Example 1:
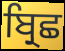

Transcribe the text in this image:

ਬ੍ਰਿਛ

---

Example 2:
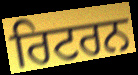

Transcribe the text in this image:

ਰਿਟਰਨ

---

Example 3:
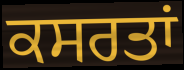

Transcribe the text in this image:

ਕਸਰਤਾਂ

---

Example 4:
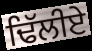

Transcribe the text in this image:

ਢਿੱਲੀਏ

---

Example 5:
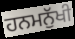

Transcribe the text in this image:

ਹਨਮਨੁੱਖੀ